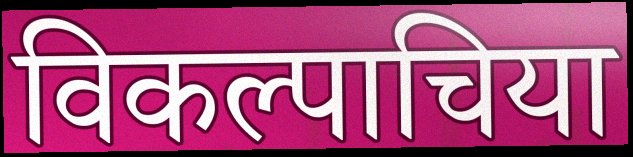
विकल्पाचिया